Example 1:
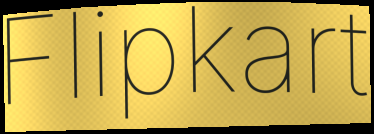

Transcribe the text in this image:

Flipkart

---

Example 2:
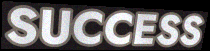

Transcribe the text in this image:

SUCCESS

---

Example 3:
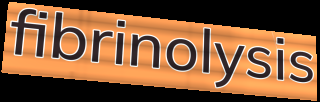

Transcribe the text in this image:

fibrinolysis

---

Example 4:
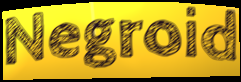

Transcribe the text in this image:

Negroid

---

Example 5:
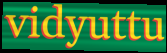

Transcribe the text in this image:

vidyuttu